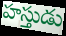
హస్తుడు